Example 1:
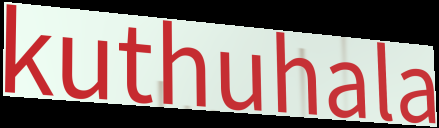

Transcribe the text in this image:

kuthuhala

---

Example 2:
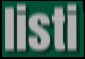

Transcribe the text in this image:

listi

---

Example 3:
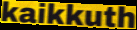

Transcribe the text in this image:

kaikkuth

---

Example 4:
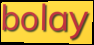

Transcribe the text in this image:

bolay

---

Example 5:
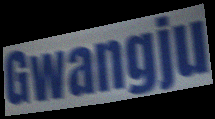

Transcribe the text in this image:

Gwangju